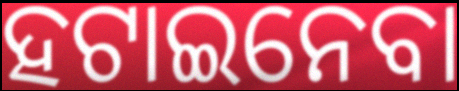
ହଟାଇନେବା